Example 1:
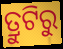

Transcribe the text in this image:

ତ୍ରୁଟିରୁ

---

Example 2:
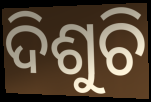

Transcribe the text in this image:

ଦିଶୁଚି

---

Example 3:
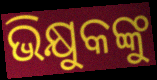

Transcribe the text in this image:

ଭିକ୍ଷୁକଙ୍କୁ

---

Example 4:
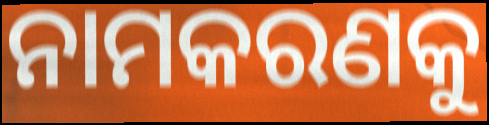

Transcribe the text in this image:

ନାମକରଣକୁ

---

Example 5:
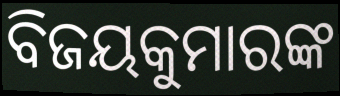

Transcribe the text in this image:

ବିଜୟକୁମାରଙ୍କ